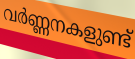
വർണ്ണനകളുണ്ട്